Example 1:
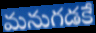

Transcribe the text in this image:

మనుగడకే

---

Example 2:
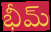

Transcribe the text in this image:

భీమ్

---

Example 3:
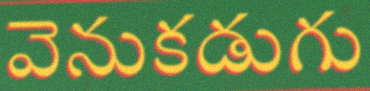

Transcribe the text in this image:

వెనుకడుగు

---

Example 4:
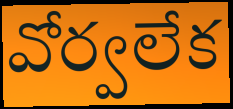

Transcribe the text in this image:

వోర్వలేక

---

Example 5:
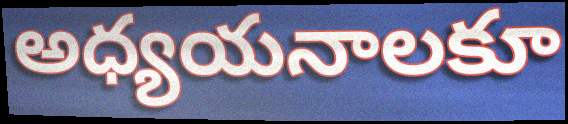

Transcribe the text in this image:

అధ్యయనాలకూ